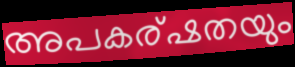
അപകര്ഷതയും